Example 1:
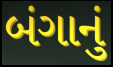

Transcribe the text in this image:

બંગાનું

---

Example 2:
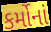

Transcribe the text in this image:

કર્મોનાં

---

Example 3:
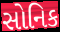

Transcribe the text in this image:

સોનિક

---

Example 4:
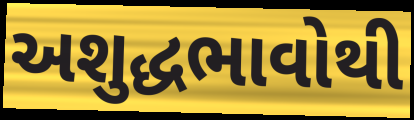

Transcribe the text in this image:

અશુદ્ધભાવોથી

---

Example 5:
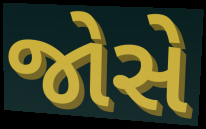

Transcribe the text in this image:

જોસે